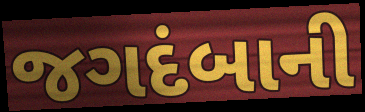
જગદંબાની